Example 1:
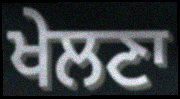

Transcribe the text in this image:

ਖੇਲਣਾ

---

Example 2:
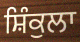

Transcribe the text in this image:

ਸ਼ਿੰਕੁਲਾ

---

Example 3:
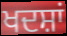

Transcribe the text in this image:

ਖਦਸ਼ਾਂ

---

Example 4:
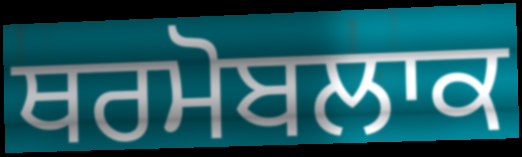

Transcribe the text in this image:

ਥਰਮੋਬਲਾਕ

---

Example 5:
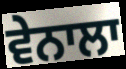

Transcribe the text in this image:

ਵੇਨਾਲਾ